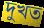
দুখত